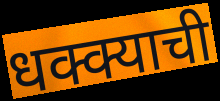
धक्क्याची